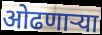
ओढणार्‍या